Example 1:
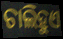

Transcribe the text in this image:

ଚାଲିହୁଏ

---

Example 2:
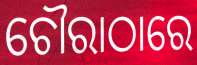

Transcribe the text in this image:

ଚୌରାଠାରେ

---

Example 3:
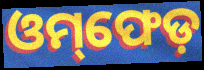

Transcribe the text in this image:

ଓମ୍‌ଫେଡ଼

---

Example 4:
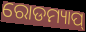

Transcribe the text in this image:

ରୋଡମ୍ୟାପ୍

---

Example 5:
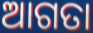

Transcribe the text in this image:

ଆଗତା